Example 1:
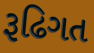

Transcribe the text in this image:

રૂઢિગત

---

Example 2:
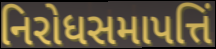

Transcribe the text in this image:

નિરોધસમાપત્તિં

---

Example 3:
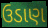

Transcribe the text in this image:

ઉડાણ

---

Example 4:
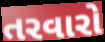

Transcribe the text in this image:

તરવારો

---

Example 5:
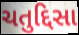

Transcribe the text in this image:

ચતુદ્દિસા